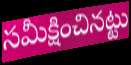
సమీక్షించినట్టు